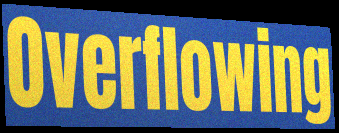
Overflowing